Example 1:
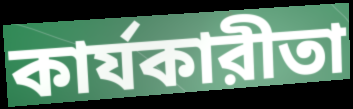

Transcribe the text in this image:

কার্যকারীতা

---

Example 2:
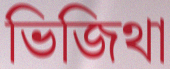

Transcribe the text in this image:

ভিজিথা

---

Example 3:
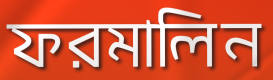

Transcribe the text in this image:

ফরমালিন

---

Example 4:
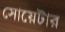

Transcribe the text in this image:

সোয়েটার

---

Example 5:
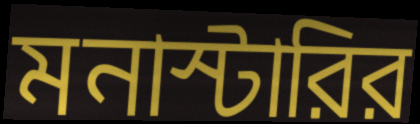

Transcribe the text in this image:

মনাস্টারির